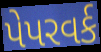
પેપરવર્ક